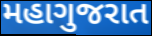
મહાગુજરાત